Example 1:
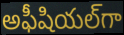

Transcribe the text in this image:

అఫీషియల్‌గా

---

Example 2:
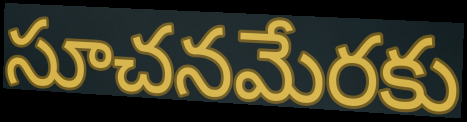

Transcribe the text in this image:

సూచనమేరకు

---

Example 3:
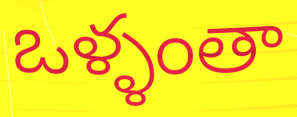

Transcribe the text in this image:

ఒళ్ళంతా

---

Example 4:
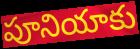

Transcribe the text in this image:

పూనియాకు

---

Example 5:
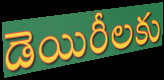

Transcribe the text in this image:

డెయిరీలకు